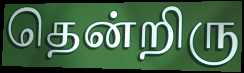
தென்றிரு